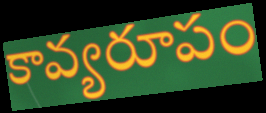
కావ్యరూపం